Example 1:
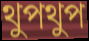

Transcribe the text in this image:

থুপথুপ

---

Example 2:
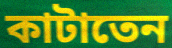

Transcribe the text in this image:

কাটাতেন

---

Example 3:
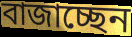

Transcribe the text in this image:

বাজাচ্ছেন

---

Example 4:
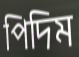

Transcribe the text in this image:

পিদিম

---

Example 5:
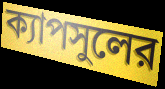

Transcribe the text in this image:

ক্যাপসুলের